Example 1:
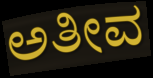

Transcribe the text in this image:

ಅತೀವ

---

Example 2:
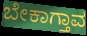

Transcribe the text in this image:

ಬೇಕಾಗ್ತಾವ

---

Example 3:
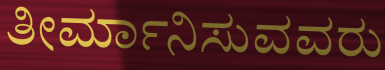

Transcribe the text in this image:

ತೀರ್ಮಾನಿಸುವವರು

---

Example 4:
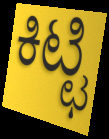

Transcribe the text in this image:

ಕಿಟ್ಟಿ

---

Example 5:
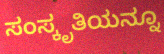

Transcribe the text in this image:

ಸಂಸ್ಕೃತಿಯನ್ನೂ